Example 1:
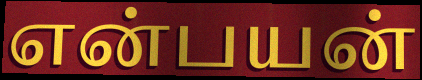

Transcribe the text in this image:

என்பயன்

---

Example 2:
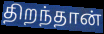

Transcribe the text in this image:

திறந்தான்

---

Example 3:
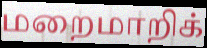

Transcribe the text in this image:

மறைமாறிக்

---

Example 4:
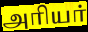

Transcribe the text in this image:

அரியர்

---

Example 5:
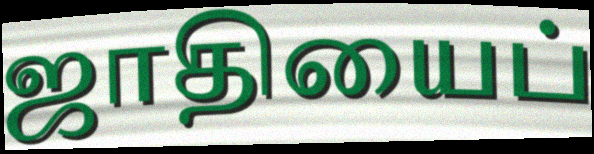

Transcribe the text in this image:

ஜாதியைப்